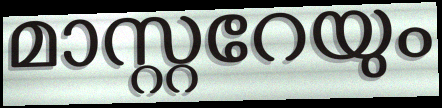
മാസ്റ്ററേയും